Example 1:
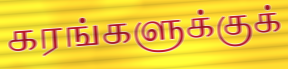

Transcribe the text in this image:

கரங்களுக்குக்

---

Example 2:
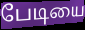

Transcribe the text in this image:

பேடியை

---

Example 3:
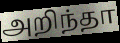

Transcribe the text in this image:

அறிந்தா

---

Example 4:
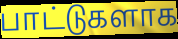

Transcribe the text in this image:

பாட்டுகளாக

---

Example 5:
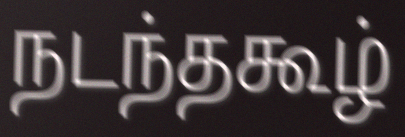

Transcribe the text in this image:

நடந்தகூழ்